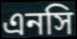
এনসি